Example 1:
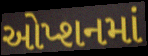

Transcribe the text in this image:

ઓપ્શનમાં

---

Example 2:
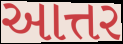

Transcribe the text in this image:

આત્તર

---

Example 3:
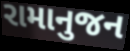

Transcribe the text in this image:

રામાનુજન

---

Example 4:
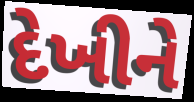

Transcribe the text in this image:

દેખીને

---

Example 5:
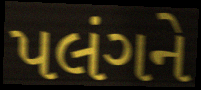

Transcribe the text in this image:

પલંગને